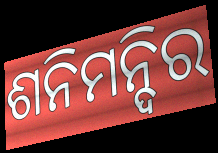
ଶନିମନ୍ଦିର